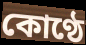
কোণ্ঠে